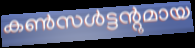
കൺസൾട്ടന്റുമായ